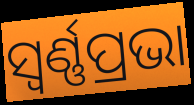
ସ୍ୱର୍ଣ୍ଣପ୍ରଭା